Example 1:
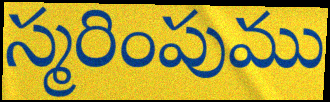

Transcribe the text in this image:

స్మరింపుము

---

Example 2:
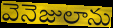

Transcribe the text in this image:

వెనెజులాను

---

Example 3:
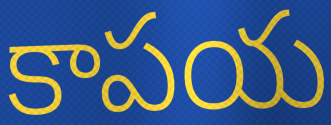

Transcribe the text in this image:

కాపయ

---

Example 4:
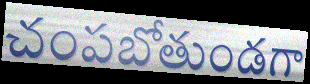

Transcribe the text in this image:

చంపబోతుండగా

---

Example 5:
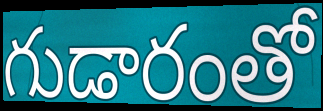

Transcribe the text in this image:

గుడారంతో